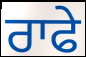
ਰਾਫੇ